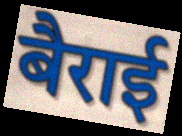
बैराई